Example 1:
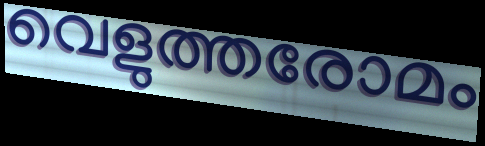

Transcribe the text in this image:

വെളുത്തരോമം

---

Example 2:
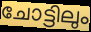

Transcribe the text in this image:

ചോട്ടിലും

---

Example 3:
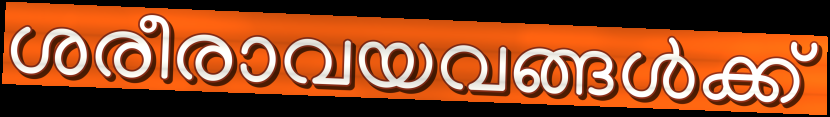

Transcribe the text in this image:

ശരീരാവയവങ്ങൾക്ക്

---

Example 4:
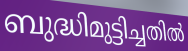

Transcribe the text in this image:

ബുദ്ധിമുട്ടിച്ചതിൽ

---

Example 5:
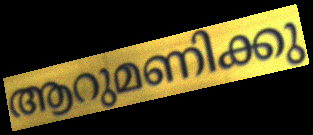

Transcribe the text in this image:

ആറുമണിക്കു